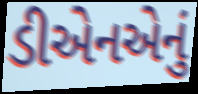
ડીએનએનું